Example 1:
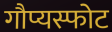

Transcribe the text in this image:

गौप्यस्फोट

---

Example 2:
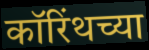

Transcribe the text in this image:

कॉरिंथच्या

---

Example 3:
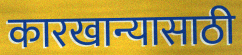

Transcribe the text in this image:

कारखान्यासाठी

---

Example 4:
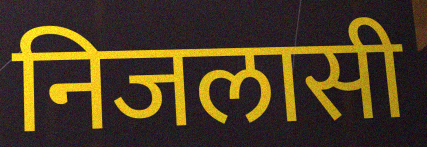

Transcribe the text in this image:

निजलासी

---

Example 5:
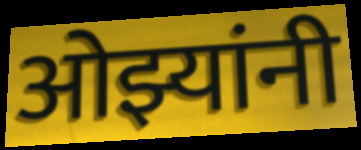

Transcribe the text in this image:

ओझ्यांनी